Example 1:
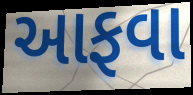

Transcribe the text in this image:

આફવા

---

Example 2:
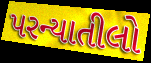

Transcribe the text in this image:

પરન્યાતીલો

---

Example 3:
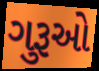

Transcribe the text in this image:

ગુરૂઓ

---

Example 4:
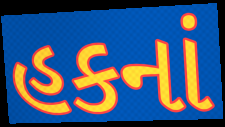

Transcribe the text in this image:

હકનાં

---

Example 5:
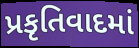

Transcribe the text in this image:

પ્રકૃતિવાદમાં